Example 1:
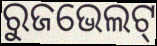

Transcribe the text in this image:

ରୁଜଭେଲଟ୍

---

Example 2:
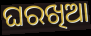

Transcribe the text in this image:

ଘରଖିଆ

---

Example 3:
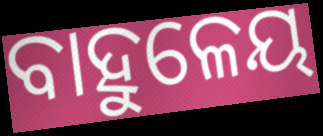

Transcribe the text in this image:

ବାହୁଳେୟ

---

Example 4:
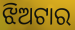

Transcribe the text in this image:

ଝିଅଟାର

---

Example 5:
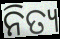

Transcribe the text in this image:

ନିତ୍ୟ